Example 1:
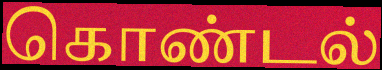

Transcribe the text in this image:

கொண்டல்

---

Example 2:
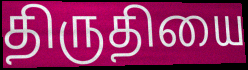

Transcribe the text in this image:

திருதியை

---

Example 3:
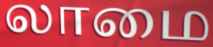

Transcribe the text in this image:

லாமை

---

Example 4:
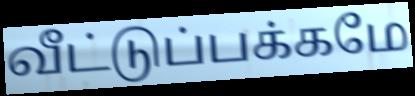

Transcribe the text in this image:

வீட்டுப்பக்கமே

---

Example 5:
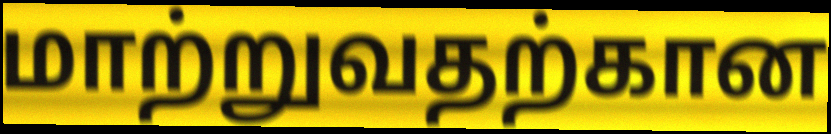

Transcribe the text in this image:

மாற்றுவதற்கான